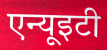
एन्यूइटी